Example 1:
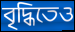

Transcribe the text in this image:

বৃদ্ধিতেও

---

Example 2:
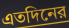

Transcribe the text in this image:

এতদিনের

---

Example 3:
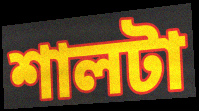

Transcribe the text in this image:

শালটা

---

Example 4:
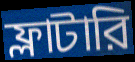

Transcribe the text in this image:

ফ্লাটারি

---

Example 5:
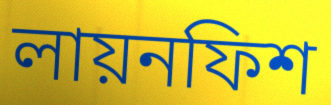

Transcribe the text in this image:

লায়নফিশ